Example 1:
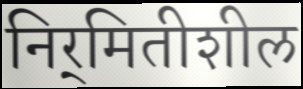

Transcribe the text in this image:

निर्मितीशील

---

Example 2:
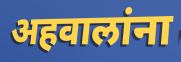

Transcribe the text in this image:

अहवालांना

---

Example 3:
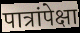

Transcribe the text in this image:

पात्रांपेक्षा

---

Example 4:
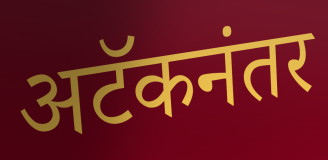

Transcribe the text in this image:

अटॅकनंतर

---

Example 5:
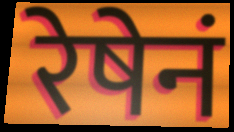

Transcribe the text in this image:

रेषेनं